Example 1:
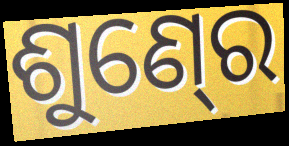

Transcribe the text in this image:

ଶୁଣ୍‍ରେ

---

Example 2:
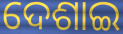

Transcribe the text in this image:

ଦେଶାଇ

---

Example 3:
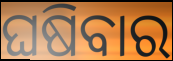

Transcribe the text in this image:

ଘଷିବାର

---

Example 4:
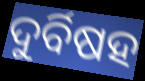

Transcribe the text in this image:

ଦୁର୍ବିଷହ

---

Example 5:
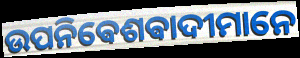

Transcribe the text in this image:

ଉପନିଵେଶଵାଦୀମାନେ